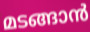
മടങ്ങാൻ